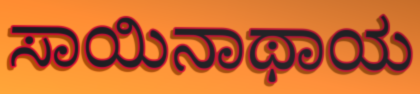
ಸಾಯಿನಾಥಾಯ